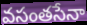
వసంతసేనా